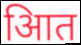
आित